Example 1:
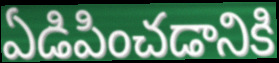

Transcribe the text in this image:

ఏడిపించడానికి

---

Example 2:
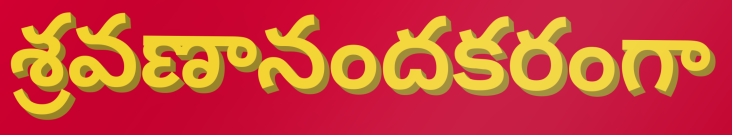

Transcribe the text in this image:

శ్రవణానందకరంగా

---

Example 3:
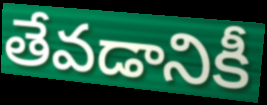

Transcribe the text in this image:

తేవడానికీ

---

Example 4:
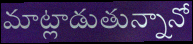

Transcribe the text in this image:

మాట్లాడుతున్నానో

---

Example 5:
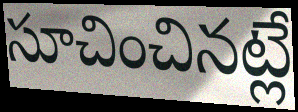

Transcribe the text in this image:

సూచించినట్లే